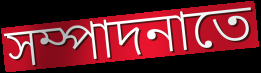
সম্পাদনাতে